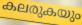
കലരുകയും